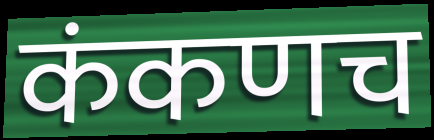
कंकणच